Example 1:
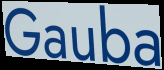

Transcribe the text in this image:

Gauba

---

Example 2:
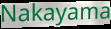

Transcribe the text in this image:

Nakayama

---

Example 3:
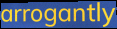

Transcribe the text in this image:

arrogantly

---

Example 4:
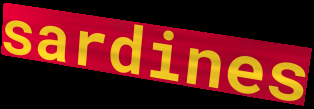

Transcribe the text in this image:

sardines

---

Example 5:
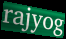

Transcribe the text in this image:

rajyog